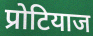
प्रोटियाज